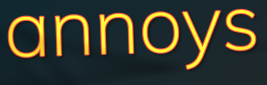
annoys